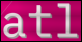
atl